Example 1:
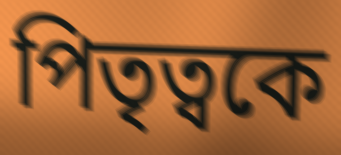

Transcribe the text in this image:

পিতৃত্বকে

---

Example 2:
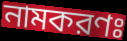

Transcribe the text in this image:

নামকরণঃ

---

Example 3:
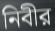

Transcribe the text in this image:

নিবীর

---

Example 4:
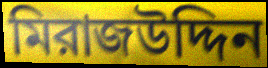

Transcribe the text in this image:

মিরাজউদ্দিন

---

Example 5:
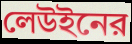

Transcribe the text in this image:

লেউইনের